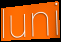
luni